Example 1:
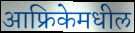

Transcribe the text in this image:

आफ्रिकेमधील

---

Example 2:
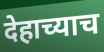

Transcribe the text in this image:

देहाच्याच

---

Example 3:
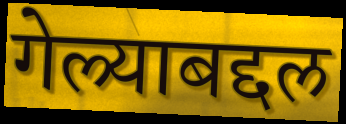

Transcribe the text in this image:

गेल्याबद्दल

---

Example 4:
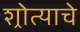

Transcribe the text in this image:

श्रोत्याचे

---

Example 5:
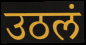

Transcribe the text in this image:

उठलं